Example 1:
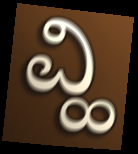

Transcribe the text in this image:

ವ್ಹಿ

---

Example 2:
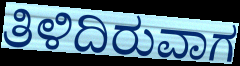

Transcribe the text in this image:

ತಿಳಿದಿರುವಾಗ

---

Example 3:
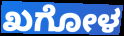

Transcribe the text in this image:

ಖಗೋಳ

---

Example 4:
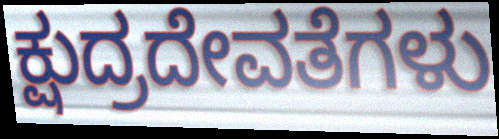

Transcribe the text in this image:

ಕ್ಷುದ್ರದೇವತೆಗಳು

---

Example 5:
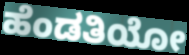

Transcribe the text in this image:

ಹೆಂಡತಿಯೋ